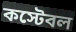
কস্টেবল